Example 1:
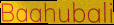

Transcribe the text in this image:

Baahubali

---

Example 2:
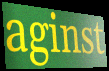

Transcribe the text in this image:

aginst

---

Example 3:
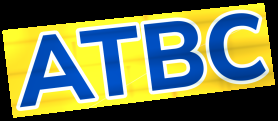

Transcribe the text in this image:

ATBC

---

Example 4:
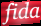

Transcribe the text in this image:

fida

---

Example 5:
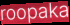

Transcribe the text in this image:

roopaka